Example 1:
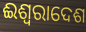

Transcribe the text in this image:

ଈଶ୍ୱରାଦେଶ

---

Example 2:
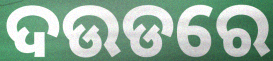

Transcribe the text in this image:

ଦଉଡରେ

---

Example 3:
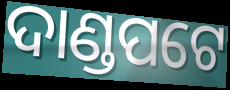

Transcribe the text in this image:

ଦାଣ୍ଡପଟେ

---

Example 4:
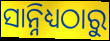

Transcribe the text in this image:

ସାନ୍ନିଧ୍ୟଠାରୁ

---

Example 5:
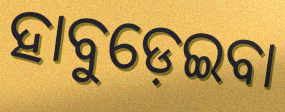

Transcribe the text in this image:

ହାବୁଡ଼େଇବା